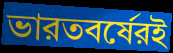
ভারতবর্ষেরই